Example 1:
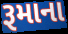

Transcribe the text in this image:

રૂમાના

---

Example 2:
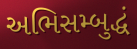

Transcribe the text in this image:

અભિસમ્બુદ્ધં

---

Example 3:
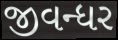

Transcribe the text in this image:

જીવન્ધર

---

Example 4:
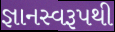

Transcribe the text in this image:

જ્ઞાનસ્વરૂપથી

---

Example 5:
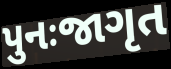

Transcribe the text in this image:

પુનઃજાગૃત